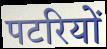
पटरियों